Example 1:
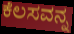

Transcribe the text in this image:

ಕೆಲಸವನ್ನ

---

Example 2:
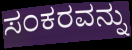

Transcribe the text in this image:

ಸಂಕರವನ್ನು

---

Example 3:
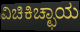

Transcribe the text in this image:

ವಿಚಿಕಿಚ್ಛಾಯ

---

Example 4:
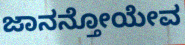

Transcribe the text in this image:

ಜಾನನ್ತೋಯೇವ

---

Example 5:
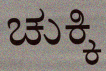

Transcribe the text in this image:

ಚುಕ್ಕಿ